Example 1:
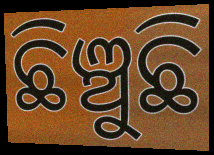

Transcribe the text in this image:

ଛିଞ୍ଚୁଛି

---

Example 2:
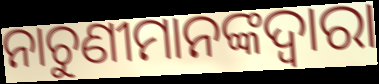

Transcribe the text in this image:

ନାଚୁଣୀମାନଙ୍କଦ୍ୱାରା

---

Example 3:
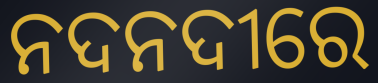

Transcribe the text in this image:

ନଦନଦୀରେ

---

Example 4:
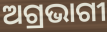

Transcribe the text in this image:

ଅଗ୍ରଭାଗୀ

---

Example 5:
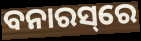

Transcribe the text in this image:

ବନାରସ୍‌ରେ